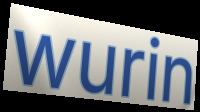
wurin